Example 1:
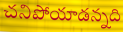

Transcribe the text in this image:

చనిపోయాడన్నది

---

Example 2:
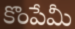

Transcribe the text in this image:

కొంపేమీ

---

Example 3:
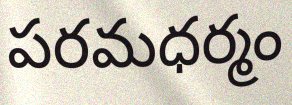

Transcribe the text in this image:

పరమధర్మం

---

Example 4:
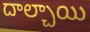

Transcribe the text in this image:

దాల్చాయి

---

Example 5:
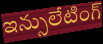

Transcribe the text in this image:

ఇన్సులేటింగ్